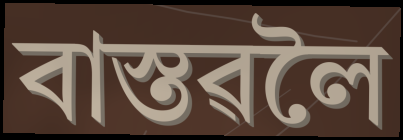
বাস্তৱলৈ